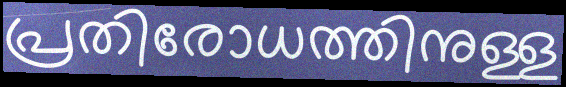
പ്രതിരോധത്തിനുള്ള